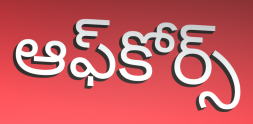
ఆఫ్‌కోర్స్